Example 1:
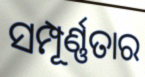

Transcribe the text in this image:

ସମ୍ପୂର୍ଣ୍ଣତାର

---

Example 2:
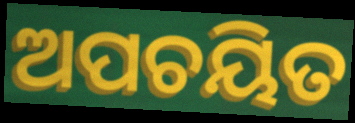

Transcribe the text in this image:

ଅପଚୟିତ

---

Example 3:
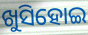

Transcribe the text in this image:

ଖୁସିହୋଇ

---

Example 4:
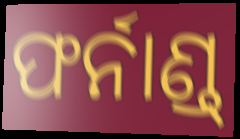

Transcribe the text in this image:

ଫର୍ନାଣ୍ଡ୍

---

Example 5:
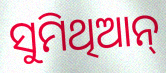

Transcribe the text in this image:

ସୁମିଥିଆନ୍